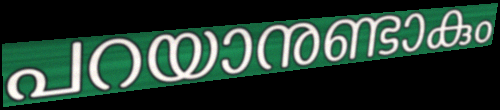
പറയാനുണ്ടാകും